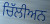
ਚਿੱਲੀਅਨ